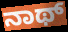
ನಾಥ್